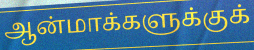
ஆன்மாக்களுக்குக்